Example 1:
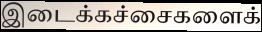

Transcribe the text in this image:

இடைக்கச்சைகளைக்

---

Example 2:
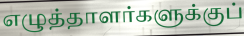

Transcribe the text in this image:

எழுத்தாளர்களுக்குப்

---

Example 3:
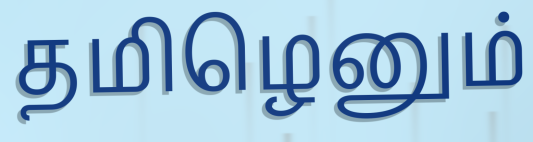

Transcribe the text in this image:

தமிழெனும்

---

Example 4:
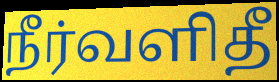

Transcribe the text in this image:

நீர்வளிதீ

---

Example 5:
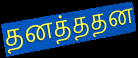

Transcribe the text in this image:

தனத்ததன